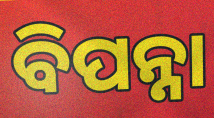
ବିପନ୍ନା